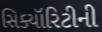
સિક્યૉરિટીની